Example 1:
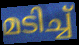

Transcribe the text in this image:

മടിച്ച്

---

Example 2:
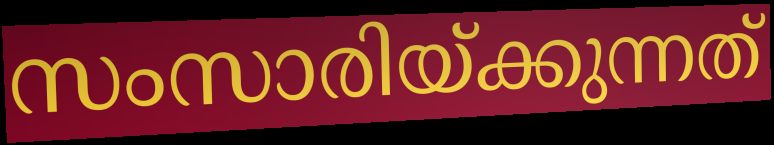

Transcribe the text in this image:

സംസാരിയ്ക്കുന്നത്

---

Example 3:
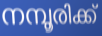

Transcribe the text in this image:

നമ്പൂരിക്ക്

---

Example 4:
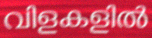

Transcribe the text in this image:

വിളകളിൽ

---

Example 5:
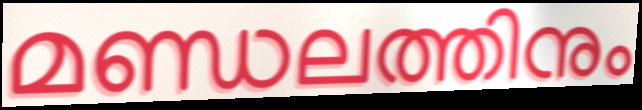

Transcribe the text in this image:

മണ്ഡലത്തിനും